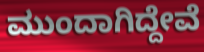
ಮುಂದಾಗಿದ್ದೇವೆ